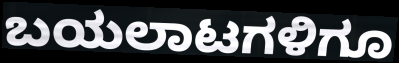
ಬಯಲಾಟಗಳಿಗೂ